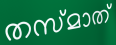
തസ്മാത്